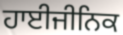
ਹਾਈਜੀਨਿਕ